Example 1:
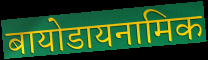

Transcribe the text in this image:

बायोडायनामिक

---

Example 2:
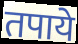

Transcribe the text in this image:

तपाये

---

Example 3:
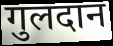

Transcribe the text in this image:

गुलदान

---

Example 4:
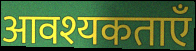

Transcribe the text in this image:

आवश्यकताएँ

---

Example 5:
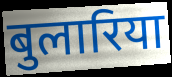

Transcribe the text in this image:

बुलारिया